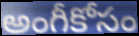
అంగీకోసం